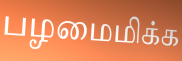
பழமைமிக்க